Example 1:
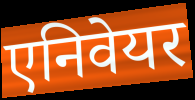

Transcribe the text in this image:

एनिवेयर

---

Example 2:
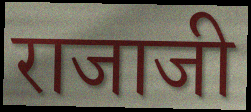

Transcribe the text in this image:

राजाजी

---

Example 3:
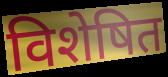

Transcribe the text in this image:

विशेषित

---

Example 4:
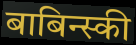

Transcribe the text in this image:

बाबिन्स्की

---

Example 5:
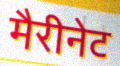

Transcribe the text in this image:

मैरीनेट